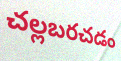
చల్లబరచడం